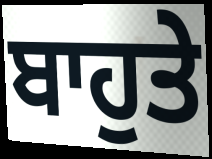
ਬਾਹੁਤੇ